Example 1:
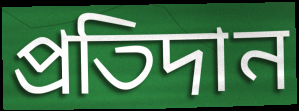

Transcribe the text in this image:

প্রতিদান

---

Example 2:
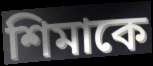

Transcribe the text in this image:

শিমাকে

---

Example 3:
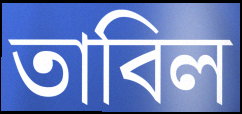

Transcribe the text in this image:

তাবিল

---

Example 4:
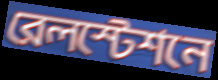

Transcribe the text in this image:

রেলস্টেশনে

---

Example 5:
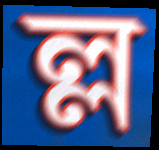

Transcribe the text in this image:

ল্ল